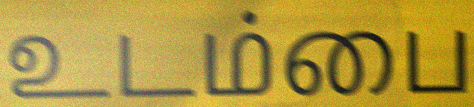
உடம்பை